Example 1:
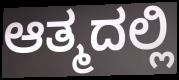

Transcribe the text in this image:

ಆತ್ಮದಲ್ಲಿ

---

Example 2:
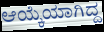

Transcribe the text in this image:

ಆಯ್ಕೆಯಾಗಿದ್ದ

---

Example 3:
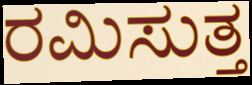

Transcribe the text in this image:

ರಮಿಸುತ್ತ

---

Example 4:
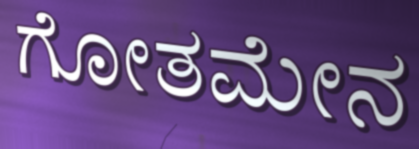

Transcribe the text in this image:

ಗೋತಮೇನ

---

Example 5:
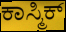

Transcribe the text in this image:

ಕಾಸ್ಮಿಕ್